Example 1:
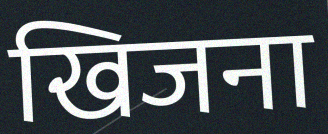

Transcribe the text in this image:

खिजना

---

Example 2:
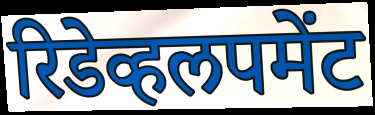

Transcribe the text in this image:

रिडेव्हलपमेंट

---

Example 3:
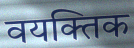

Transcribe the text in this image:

वयक्तिक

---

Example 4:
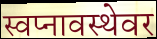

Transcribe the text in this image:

स्वप्नावस्थेवर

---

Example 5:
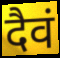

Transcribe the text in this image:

दैवं